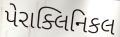
પેરાક્લિનિકલ